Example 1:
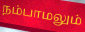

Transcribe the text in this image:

நம்பாமலும்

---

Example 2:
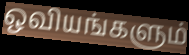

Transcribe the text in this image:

ஒவியங்களும்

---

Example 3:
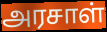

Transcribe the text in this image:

அரசாள்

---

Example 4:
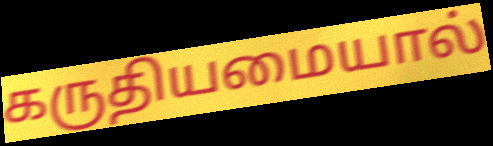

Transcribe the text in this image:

கருதியமையால்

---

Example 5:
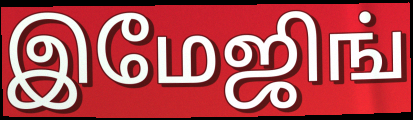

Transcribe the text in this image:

இமேஜிங்